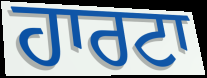
ਹਾਰਟਾ